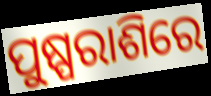
ପୁଷ୍ପରାଶିରେ